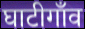
घाटीगाँव